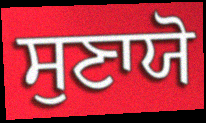
ਸੁਣਾਯੋ